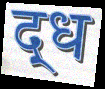
द्ध